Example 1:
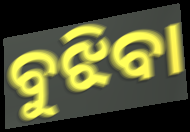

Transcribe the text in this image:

ବୁଝିବା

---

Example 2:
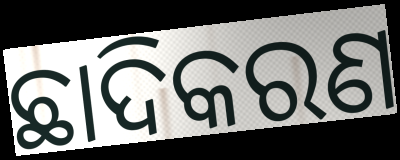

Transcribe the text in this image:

ଛାଦିକରଣ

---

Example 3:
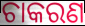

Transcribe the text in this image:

ଚାକରଣ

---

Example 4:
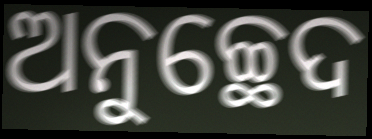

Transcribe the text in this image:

ଅନୁଚ୍ଛେଦ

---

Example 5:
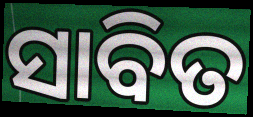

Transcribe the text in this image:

ସାବିତ